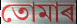
তোমাৰ